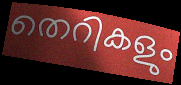
തെറികളും